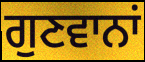
ਗੁਣਵਾਨਾਂ